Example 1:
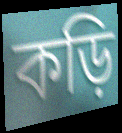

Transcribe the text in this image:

কড়ি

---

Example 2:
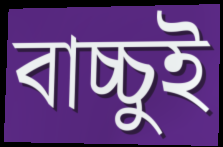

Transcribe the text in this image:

বাচ্চুই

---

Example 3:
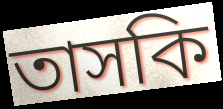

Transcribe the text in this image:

তাসকি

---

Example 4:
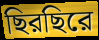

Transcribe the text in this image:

ছিরছিরে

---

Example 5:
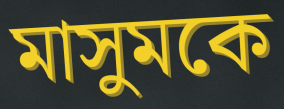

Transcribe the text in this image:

মাসুমকে